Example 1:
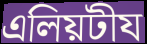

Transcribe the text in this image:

এলিয়টীয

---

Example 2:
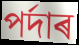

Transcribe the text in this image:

পৰ্দাৰ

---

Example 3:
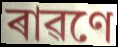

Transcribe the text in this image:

ৰাৱণে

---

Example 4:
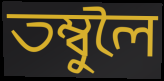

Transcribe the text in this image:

তম্বুলৈ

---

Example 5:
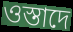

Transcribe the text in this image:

ওস্তাদে